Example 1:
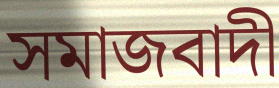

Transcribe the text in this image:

সমাজবাদী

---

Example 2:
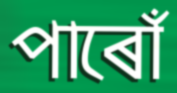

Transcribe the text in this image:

পাৰোঁ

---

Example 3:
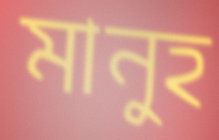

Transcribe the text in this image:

মানুহ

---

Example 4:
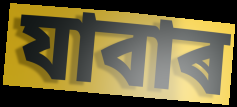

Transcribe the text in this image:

যাবাৰ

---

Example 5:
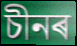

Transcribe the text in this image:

চীনৰ